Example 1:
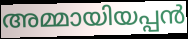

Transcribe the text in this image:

അമ്മായിയപ്പൻ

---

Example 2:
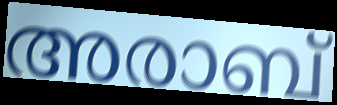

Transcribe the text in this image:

അരാബ്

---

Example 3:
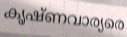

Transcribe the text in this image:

കൃഷ്ണവാര്യരെ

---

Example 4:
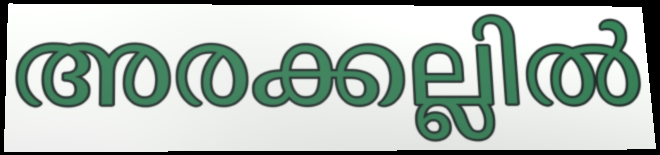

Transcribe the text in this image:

അരക്കല്ലിൽ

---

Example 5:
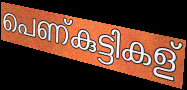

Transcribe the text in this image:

പെണ്കുട്ടികള്